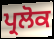
ਪ੍ਰਲੋਕ